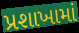
પ્રશાખામાં